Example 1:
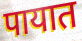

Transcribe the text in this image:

पायात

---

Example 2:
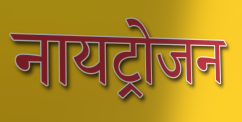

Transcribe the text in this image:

नायट्रोजन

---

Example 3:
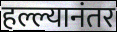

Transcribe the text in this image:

हल्ल्यानंतर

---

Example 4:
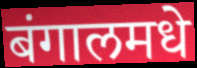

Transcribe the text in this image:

बंगालमधे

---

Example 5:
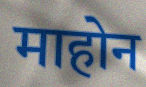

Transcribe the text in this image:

माहोन